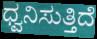
ಧ್ವನಿಸುತ್ತಿದೆ